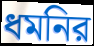
ধমনির